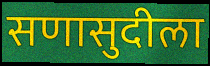
सणासुदीला